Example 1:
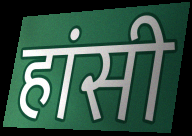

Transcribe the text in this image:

हांसी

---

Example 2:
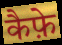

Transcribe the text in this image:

कैफ़े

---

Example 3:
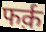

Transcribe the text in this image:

फर्क़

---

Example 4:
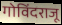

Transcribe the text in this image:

गोविंदराजू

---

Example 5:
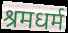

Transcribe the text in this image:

श्रमधर्म